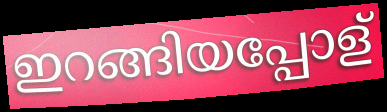
ഇറങ്ങിയപ്പോള്